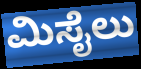
ಮಿಸೈಲು